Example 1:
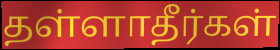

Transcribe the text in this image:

தள்ளாதீர்கள்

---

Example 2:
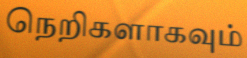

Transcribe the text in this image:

நெறிகளாகவும்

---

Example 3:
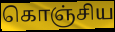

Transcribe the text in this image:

கொஞ்சிய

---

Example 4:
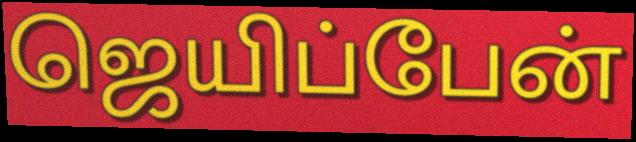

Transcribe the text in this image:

ஜெயிப்பேன்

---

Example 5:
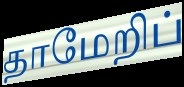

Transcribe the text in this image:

தாமேறிப்